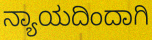
ನ್ಯಾಯದಿಂದಾಗಿ